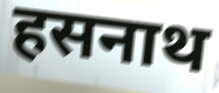
हसनाथ